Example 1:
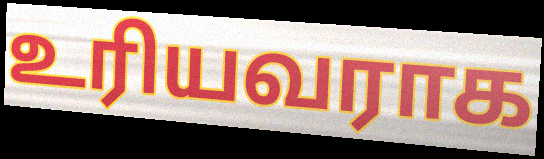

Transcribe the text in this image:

உரியவராக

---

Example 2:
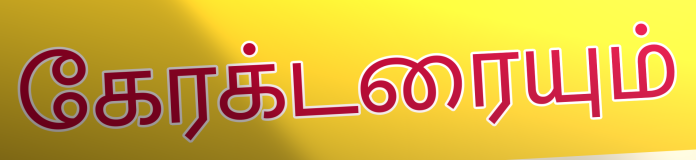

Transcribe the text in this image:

கேரக்டரையும்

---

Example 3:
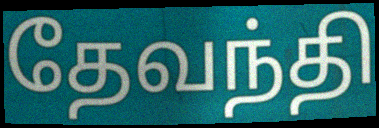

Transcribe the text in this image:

தேவந்தி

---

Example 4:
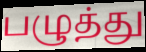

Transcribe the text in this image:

பழுத்து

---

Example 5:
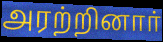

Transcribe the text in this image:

அரற்றினார்